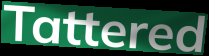
Tattered